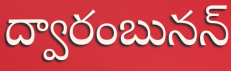
ద్వారంబునన్